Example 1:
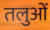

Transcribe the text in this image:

तलुओं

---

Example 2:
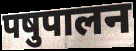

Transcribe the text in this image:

पषुपालन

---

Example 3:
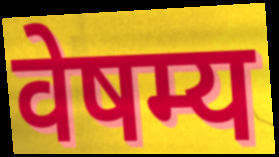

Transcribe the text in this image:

वेषम्य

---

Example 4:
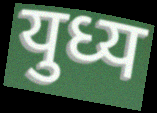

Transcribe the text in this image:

युध्य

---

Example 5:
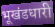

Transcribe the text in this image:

भूखंडधारी